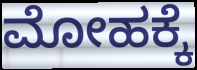
ಮೋಹಕ್ಕೆ